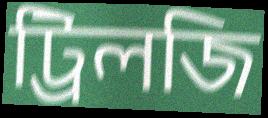
ট্রিলজি